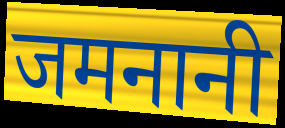
जमनानी